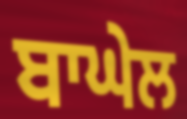
ਬਾਘੇਲ